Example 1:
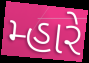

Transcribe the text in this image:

મ્હારે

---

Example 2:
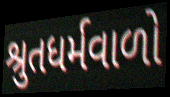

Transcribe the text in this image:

શ્રુતધર્મવાળો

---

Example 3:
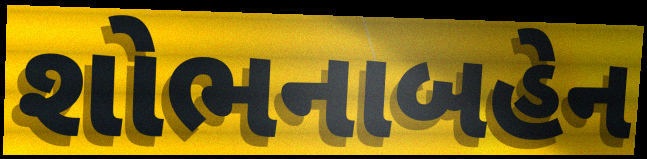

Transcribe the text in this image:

શોભનાબહેન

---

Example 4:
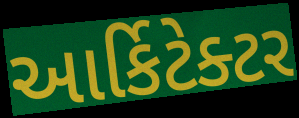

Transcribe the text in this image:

આર્કિટેક્ટર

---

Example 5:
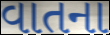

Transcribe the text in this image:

વાતના